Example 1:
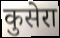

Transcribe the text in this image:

कुसेरा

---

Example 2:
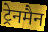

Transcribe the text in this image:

ट्रेनमैन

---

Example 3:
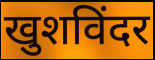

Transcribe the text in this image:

खुशविंदर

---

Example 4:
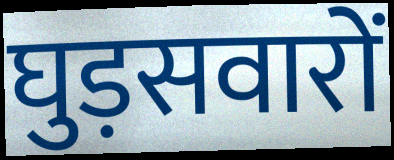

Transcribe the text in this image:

घुड़सवारों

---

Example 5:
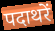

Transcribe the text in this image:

पदाथरें